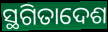
ସ୍ଥଗିତାଦେଶ